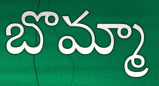
బొమ్మా